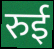
रुई